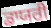
ਡਾਯਰੀ